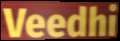
Veedhi